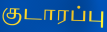
குடாரப்பு